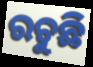
ରଚୁଛି